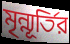
মৃন্মূর্তির